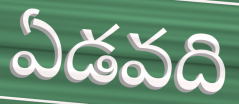
ఏడవది